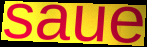
saue